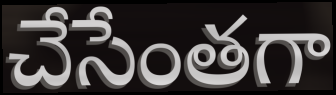
చేసేంతగా